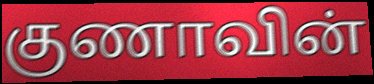
குணாவின்